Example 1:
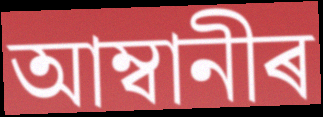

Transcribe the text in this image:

আম্বানীৰ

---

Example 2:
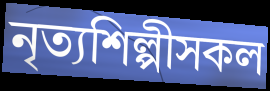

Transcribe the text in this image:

নৃত্যশিল্পীসকল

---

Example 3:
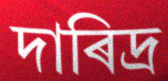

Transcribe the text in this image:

দাৰিদ্ৰ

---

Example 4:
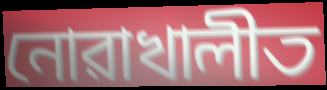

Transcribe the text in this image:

নোৱাখালীত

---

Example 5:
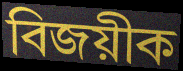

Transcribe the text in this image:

বিজয়ীক